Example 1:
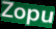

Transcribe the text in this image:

Zopu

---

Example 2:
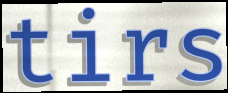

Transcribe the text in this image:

tirs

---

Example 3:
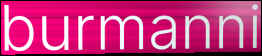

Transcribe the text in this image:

burmanni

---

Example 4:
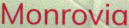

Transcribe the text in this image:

Monrovia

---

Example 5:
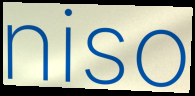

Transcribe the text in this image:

niso